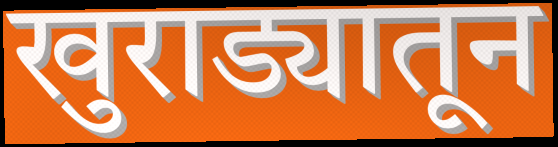
खुराड्यातून